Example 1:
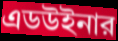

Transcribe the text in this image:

এডউইনার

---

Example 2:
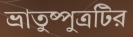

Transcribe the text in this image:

ভ্রাতুষ্পুত্রটির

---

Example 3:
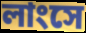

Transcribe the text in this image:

লাংসে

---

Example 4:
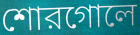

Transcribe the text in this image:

শোরগোলে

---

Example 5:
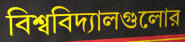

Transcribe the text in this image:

বিশ্ববিদ্যালগুলোর